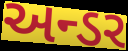
અન્ડર